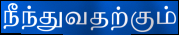
நீந்துவதற்கும்